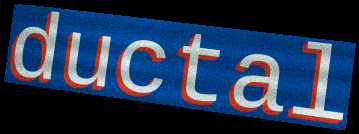
ductal